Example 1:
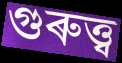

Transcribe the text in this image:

গুৰুত্ত্ব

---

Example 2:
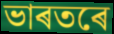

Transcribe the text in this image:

ভাৰতৰে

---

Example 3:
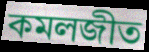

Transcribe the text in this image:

কমলজীত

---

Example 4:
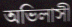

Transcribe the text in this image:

অভিলাসী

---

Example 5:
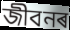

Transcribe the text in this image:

জীবনৰ